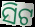
ସିଟ